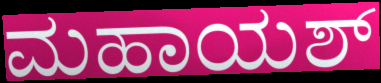
ಮಹಾಯಶ್